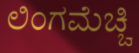
ಲಿಂಗಮೆಚ್ಚಿ